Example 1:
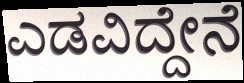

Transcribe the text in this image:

ಎಡವಿದ್ದೇನೆ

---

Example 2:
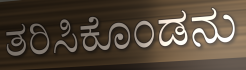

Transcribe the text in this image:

ತರಿಸಿಕೊಂಡನು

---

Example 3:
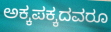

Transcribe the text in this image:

ಅಕ್ಕಪಕ್ಕದವರೂ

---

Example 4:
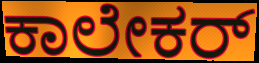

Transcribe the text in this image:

ಕಾಲೇಕರ್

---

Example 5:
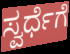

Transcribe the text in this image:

ಸ್ವರ್ಧೆಗೆ